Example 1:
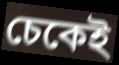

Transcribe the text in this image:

চেকেই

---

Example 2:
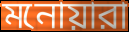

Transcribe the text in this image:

মনোয়ারা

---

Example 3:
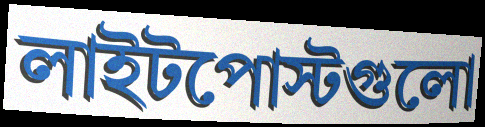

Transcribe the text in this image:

লাইটপোস্টগুলো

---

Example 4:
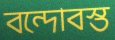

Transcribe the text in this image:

বন্দোবস্ত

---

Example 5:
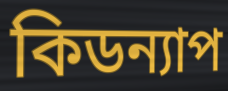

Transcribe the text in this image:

কিডন্যাপ